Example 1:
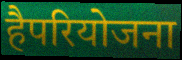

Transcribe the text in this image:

हैपरियोजना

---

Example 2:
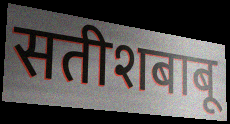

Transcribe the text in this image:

सतीशबाबू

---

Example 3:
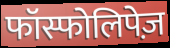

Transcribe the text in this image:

फॉस्फोलिपेज़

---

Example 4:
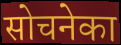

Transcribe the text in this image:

सोचनेका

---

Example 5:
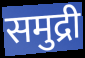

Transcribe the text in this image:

समुद्री